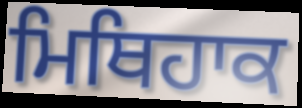
ਮਿਥਿਹਾਕ